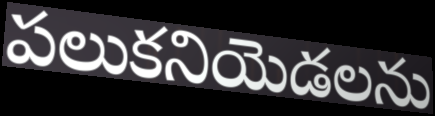
పలుకనియెడలను